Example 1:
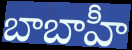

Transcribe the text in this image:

బాబాహీ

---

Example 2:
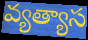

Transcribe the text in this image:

వ్యత్యాస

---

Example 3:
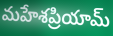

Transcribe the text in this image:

మహేశప్రియామ్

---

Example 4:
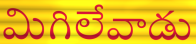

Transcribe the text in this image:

మిగిలేవాడు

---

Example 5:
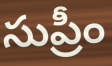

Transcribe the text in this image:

సుప్రీం